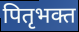
पितृभक्त